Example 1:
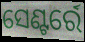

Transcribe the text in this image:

ସେଣ୍ଟର୍ରେ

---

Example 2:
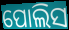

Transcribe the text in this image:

ପୋଲିସ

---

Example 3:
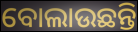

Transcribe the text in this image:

ବୋଲାଉଛନ୍ତି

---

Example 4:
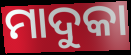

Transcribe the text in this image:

ମାଦୁକା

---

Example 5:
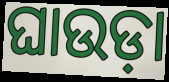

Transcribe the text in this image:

ଘାଉଡ଼ା